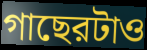
গাছেরটাও